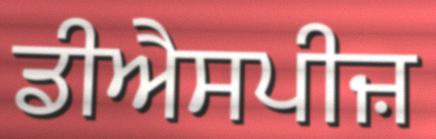
ਡੀਐਸਪੀਜ਼